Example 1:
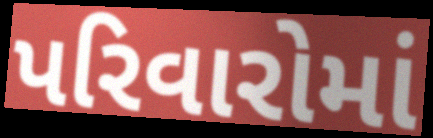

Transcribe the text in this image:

પરિવારોમાં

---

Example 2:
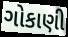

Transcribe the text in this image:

ગોકાણી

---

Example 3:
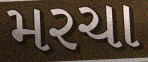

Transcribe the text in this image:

મરચા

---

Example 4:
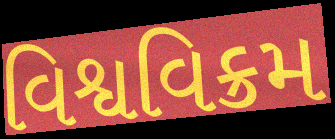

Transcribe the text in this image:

વિશ્વવિક્રમ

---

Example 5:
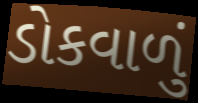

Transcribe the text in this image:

ડોકવાળું